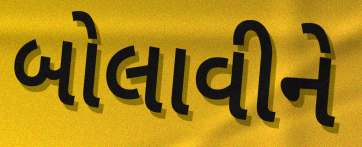
બોલાવીને